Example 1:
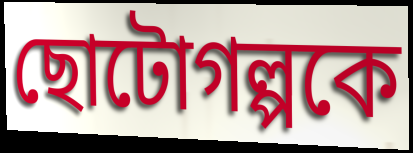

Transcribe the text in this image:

ছোটোগল্পকে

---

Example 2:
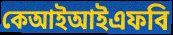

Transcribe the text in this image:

কেআইআইএফবি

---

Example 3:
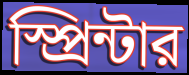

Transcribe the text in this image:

স্প্রিন্টার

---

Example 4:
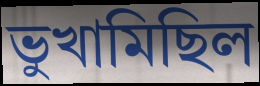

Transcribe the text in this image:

ভুখামিছিল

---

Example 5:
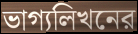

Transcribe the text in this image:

ভাগ্যলিখনের